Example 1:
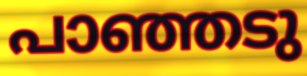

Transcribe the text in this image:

പാഞ്ഞടു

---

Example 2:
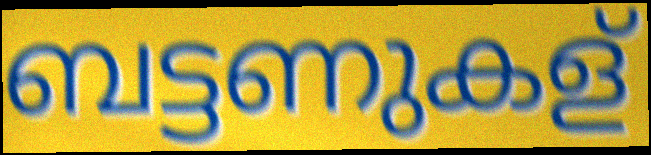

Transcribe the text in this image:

ബട്ടണുകള്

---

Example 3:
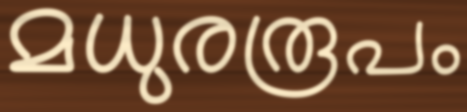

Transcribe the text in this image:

മധുരരൂപം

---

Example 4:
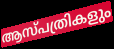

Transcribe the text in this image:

ആസ്പത്രികളും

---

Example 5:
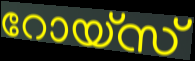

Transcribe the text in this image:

റോയ്സ്